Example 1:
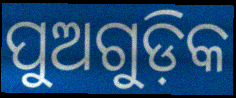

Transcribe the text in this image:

ପୁଅଗୁଡ଼ିକ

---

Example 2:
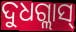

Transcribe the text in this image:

ଦୁଧଗ୍ଲାସ୍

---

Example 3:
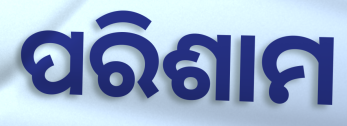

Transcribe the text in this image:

ପରିଶାମ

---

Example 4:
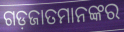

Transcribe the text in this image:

ଗଡ଼ଜାତମାନଙ୍କର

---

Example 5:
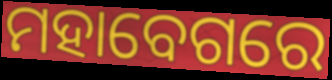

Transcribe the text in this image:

ମହାବେଗରେ